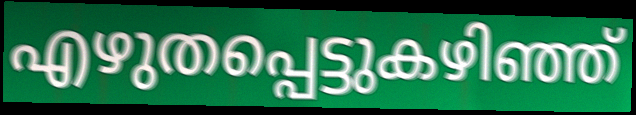
എഴുതപ്പെട്ടുകഴിഞ്ഞ്